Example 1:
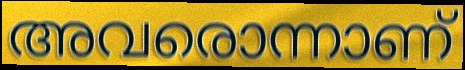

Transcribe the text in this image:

അവരൊന്നാണ്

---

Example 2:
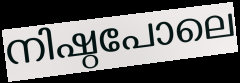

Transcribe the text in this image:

നിഷ്ഠപോലെ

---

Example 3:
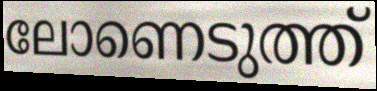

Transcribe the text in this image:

ലോണെടുത്ത്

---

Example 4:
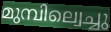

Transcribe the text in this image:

മുമ്പില്വെച്ചു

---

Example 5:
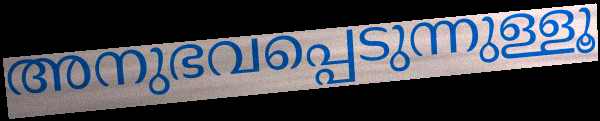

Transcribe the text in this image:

അനുഭവപ്പെടുന്നുള്ളൂ